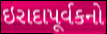
ઇરાદાપૂર્વકનો